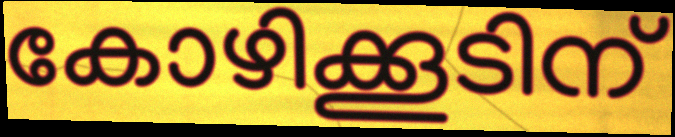
കോഴിക്കൂടിന്